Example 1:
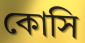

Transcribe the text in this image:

কোসি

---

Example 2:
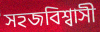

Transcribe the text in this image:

সহজবিশ্বাসী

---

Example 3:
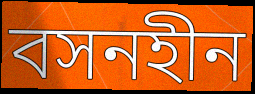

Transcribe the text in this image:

বসনহীন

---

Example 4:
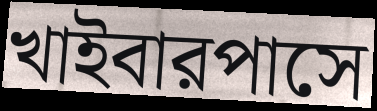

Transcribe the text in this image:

খাইবারপাসে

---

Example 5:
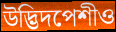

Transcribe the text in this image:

উদ্ভিদপেশীও